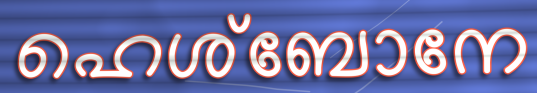
ഹെശ്ബോനേ